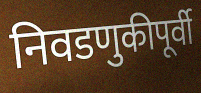
निवडणुकीपूर्वी